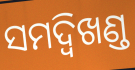
ସମଦ୍ବିଖଣ୍ଡ